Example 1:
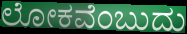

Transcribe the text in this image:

ಲೋಕವೆಂಬುದು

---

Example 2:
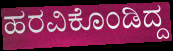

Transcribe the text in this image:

ಹರವಿಕೊಂಡಿದ್ದ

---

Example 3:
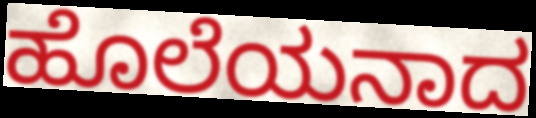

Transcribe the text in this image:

ಹೊಲೆಯನಾದ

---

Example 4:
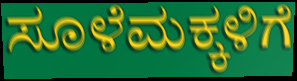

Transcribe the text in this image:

ಸೂಳೆಮಕ್ಕಳಿಗೆ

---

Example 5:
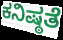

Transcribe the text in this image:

ಕನಿಷ್ಠತೆ